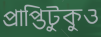
প্রাপ্তিটুকুও